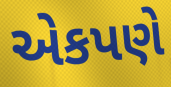
એકપણે